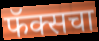
फॅक्सचा